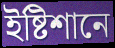
ইষ্টিশানে